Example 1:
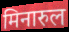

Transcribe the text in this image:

मिनारुल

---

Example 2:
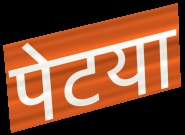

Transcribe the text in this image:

पेटया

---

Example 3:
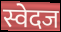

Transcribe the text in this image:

स्वेदज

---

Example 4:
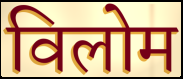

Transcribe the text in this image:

विलोम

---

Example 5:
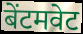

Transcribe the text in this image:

बेंटमवेट